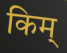
किम्